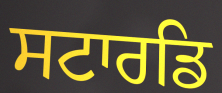
ਸਟਾਰਡਿ